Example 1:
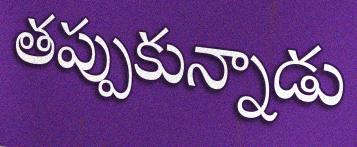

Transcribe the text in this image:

తప్పుకున్నాడు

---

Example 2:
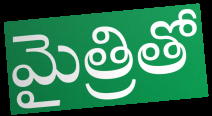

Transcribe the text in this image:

మైత్రితో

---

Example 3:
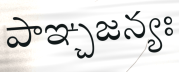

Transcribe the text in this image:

పాఞ్చజన్యః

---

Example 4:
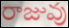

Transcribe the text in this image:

రాజువు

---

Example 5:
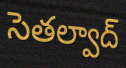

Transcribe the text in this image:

సెతల్వాద్